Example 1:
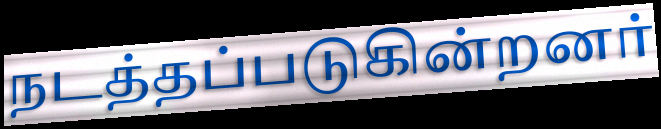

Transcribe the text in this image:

நடத்தப்படுகின்றனர்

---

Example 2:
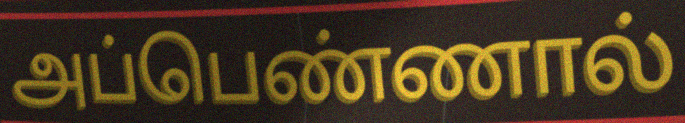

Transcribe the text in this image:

அப்பெண்ணால்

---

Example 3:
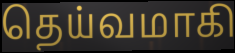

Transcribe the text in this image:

தெய்வமாகி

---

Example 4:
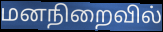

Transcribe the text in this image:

மனநிறைவில்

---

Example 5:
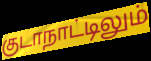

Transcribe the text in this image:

குடாநாட்டிலும்